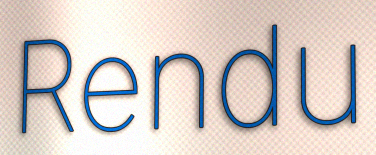
Rendu